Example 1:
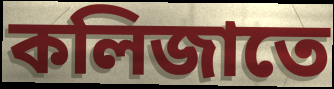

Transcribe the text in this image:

কলিজাতে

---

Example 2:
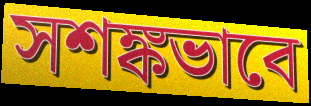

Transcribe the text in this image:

সশঙ্কভাবে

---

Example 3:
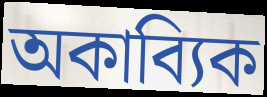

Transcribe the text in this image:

অকাব্যিক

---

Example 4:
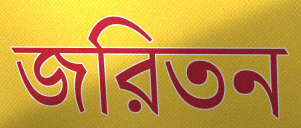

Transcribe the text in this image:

জরিতন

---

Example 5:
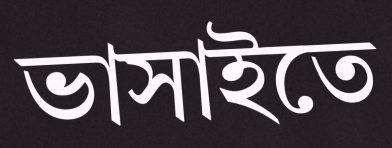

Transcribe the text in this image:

ভাসাইতে